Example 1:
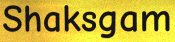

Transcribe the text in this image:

Shaksgam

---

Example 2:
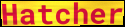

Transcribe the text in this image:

Hatcher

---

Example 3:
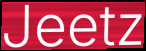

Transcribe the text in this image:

Jeetz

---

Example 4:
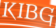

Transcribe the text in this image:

KIBG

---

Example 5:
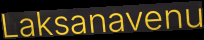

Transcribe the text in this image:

Laksanavenu